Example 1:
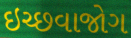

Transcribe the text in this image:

ઇચ્છવાજોગ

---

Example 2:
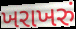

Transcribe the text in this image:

ખરાખરું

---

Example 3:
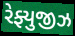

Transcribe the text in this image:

રેફ્યુજીઝ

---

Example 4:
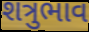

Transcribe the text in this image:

શત્રુભાવ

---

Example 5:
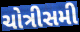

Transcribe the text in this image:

ચોત્રીસમી